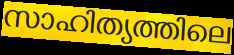
സാഹിത്യത്തിലെ